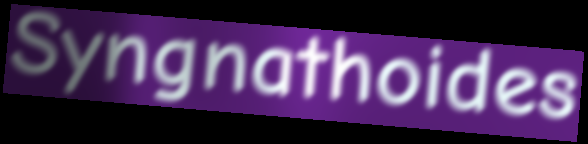
Syngnathoides